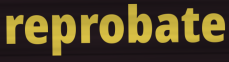
reprobate